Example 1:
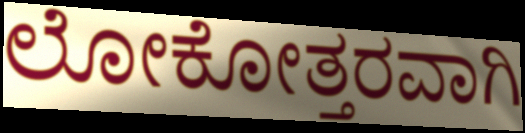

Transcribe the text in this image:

ಲೋಕೋತ್ತರವಾಗಿ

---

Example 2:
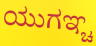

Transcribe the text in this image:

ಯುಗಞ್ಚ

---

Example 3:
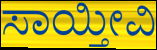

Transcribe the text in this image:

ಸಾಯ್ತೀವಿ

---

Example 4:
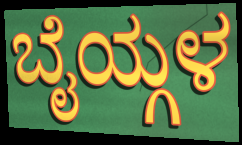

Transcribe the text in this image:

ಬೈಯ್ಗಳ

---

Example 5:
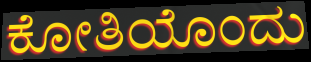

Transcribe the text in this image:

ಕೋತಿಯೊಂದು